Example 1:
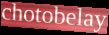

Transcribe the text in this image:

chotobelay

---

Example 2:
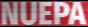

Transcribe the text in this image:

NUEPA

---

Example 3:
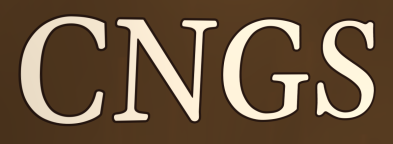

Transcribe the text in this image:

CNGS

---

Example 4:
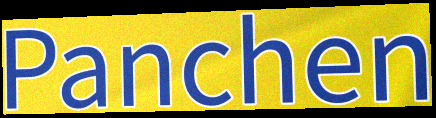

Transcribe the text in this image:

Panchen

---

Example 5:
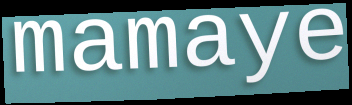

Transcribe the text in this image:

mamaye